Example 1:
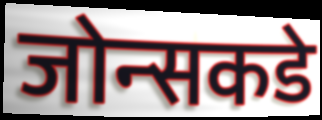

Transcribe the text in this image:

जोन्सकडे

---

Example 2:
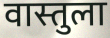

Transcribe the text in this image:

वास्तुला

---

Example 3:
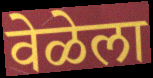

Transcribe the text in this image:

वेळेला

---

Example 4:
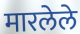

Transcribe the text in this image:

मारलेले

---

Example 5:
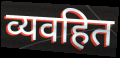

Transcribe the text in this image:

व्यवहित